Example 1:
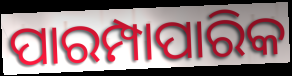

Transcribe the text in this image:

ପାରମ୍ପାପାରିକ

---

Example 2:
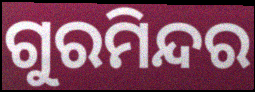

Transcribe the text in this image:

ଗୁରମିନ୍ଦର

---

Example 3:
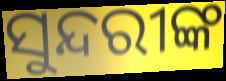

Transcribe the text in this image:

ସୁନ୍ଦରୀଙ୍କ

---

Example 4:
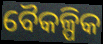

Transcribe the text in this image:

ବୈକଳ୍ପିକ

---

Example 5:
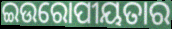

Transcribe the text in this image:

ଇଉରୋପୀୟତାର